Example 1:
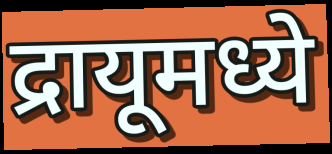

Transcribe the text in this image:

द्रायूमध्ये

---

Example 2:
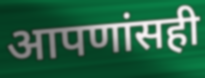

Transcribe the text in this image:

आपणांसही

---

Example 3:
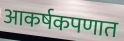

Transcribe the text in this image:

आकर्षकपणात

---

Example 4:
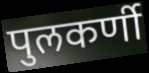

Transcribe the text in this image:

पुलकर्णी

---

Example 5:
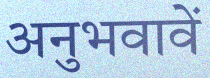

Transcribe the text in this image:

अनुभवावें